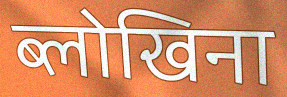
ब्लोखिना